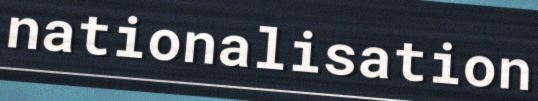
nationalisation